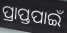
ପ୍ରାପ୍ତପାଇଁ